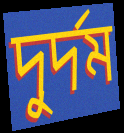
দুর্দম